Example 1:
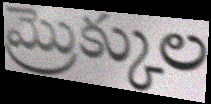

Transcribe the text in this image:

మ్రొక్కుల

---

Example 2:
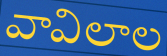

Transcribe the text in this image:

వావిలాల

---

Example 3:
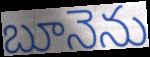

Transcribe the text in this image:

బూనెను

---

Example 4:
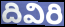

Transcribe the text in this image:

దివిరి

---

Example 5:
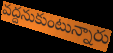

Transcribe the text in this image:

వద్దనుకుంటున్నారు